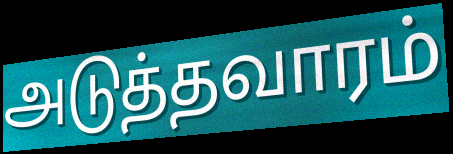
அடுத்தவாரம்